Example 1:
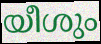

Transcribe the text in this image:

യീശും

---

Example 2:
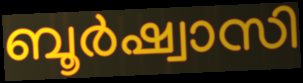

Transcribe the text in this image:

ബൂർഷ്വാസി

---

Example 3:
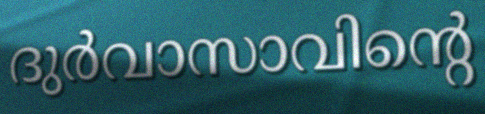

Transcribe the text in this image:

ദുർവാസാവിന്റെ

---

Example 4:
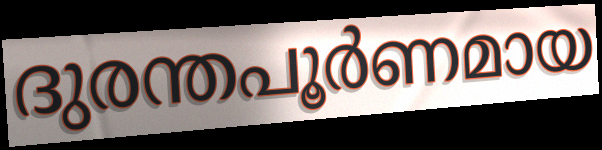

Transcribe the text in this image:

ദുരന്തപൂർണമായ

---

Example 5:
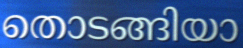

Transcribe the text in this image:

തൊടങ്ങിയാ